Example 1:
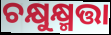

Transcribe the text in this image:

ଚକ୍ଷୁକ୍ଷ୍ମତ୍ତା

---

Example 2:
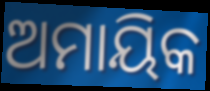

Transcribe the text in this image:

ଅମାୟିକ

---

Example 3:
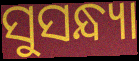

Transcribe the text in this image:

ସୁସନ୍ଧ୍ୟା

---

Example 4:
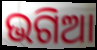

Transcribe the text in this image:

ଭଗିଆ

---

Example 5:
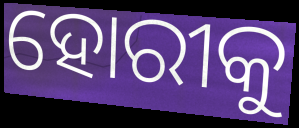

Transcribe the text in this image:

ହୋରୀକୁ